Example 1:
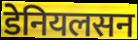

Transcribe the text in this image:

डेनियलसन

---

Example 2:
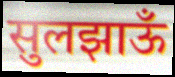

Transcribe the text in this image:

सुलझाऊँ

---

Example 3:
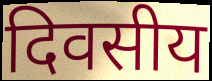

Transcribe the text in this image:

दिवसीय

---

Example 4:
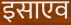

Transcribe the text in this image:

इसाएव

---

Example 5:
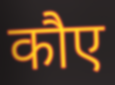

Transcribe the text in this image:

कौए